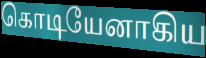
கொடியேனாகிய